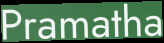
Pramatha